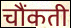
चौंकती